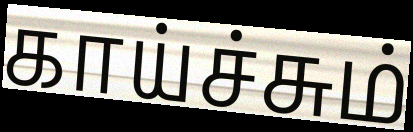
காய்ச்சும்